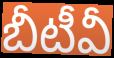
బీటీవీ